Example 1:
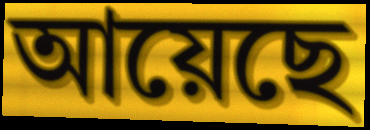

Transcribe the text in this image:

আয়েছে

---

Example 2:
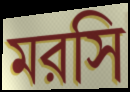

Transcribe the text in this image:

মরসি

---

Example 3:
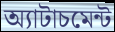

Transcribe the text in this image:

অ্যাটাচমেন্ট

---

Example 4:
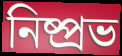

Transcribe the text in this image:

নিষ্প্রভ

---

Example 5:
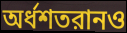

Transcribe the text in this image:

অর্ধশতরানও